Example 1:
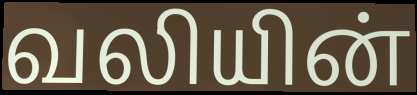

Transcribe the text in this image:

வலியின்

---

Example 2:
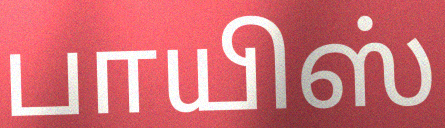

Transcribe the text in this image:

பாயிஸ்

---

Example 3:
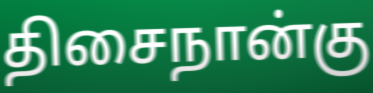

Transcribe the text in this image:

திசைநான்கு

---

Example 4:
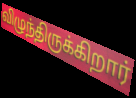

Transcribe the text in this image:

விழுந்திருக்கிறார்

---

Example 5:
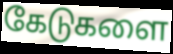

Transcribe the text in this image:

கேடுகளை